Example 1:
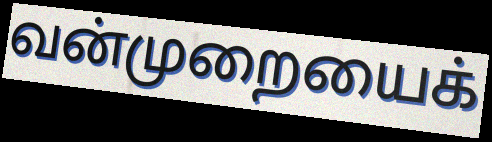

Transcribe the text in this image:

வன்முறையைக்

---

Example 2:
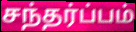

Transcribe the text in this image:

சந்தர்ப்பம்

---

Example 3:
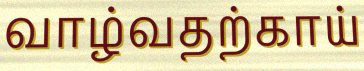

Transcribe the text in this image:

வாழ்வதற்காய்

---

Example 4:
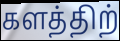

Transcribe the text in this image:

களத்திற்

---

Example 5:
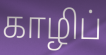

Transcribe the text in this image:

காழிப்